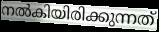
നൽകിയിരിക്കുന്നത്